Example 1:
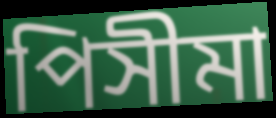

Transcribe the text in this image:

পিসীমা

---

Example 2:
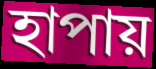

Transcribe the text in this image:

হাপায়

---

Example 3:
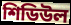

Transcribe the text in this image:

শিডিউল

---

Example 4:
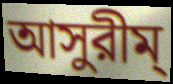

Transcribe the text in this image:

আসুরীম্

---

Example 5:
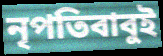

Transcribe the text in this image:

নৃপতিবাবুই